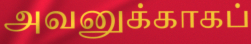
அவனுக்காகப்